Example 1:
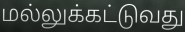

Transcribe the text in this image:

மல்லுக்கட்டுவது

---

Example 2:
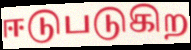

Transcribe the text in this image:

ஈடுபடுகிற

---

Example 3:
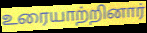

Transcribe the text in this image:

உரையாற்றினார்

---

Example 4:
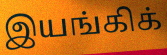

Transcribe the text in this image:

இயங்கிக்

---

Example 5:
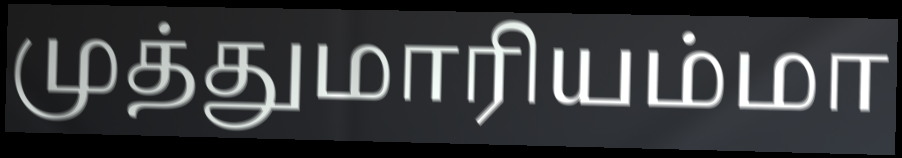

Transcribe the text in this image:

முத்துமாரியம்மா